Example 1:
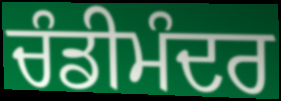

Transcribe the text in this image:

ਚੰਡੀਮੰਦਰ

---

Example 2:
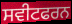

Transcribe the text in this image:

ਸਵੀਟਫਰਨ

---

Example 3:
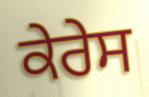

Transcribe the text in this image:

ਕੇਰੇਸ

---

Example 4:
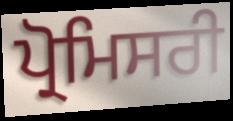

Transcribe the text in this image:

ਪ੍ਰੋਮਿਸਰੀ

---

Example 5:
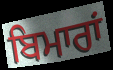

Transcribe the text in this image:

ਬਿਮਾਰਾਂ